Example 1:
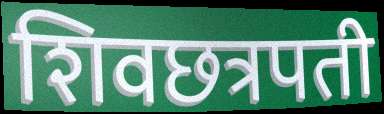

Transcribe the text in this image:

शिवछत्रपती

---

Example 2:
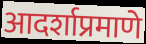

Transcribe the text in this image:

आदर्शाप्रमाणे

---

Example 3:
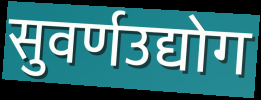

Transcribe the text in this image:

सुवर्णउद्योग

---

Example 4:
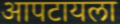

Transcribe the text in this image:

आपटायला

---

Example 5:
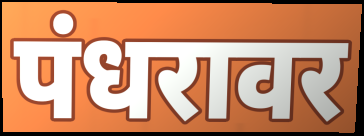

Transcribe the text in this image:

पंधरावर